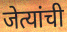
जेत्यांची